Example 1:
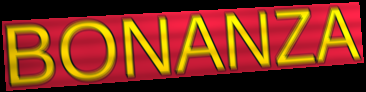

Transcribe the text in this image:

BONANZA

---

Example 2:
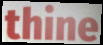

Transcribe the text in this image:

thine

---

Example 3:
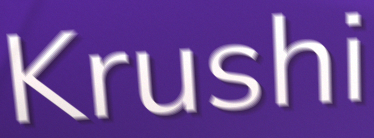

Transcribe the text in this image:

Krushi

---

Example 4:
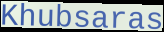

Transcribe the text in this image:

Khubsaras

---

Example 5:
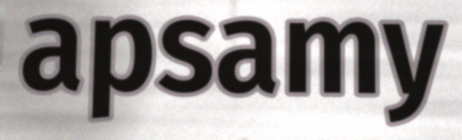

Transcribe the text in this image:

apsamy